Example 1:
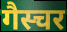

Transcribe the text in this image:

गैस्चर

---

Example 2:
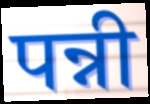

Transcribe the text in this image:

पन्नी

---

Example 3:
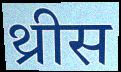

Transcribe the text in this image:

थ्रीस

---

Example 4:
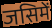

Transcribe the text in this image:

जसिमें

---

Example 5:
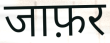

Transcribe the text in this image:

जाफ़र